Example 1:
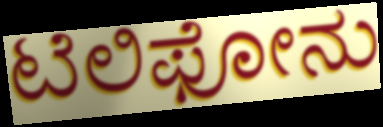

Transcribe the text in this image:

ಟೆಲಿಫೋನು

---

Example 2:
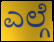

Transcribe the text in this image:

ಎಲ್ಗೆ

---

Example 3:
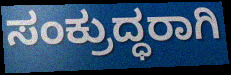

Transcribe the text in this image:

ಸಂಕ್ರುದ್ಧರಾಗಿ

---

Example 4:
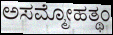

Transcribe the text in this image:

ಅಸಮ್ಮೋಹತ್ಥಂ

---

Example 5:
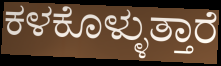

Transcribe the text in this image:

ಕಳಕೊಳ್ಳುತ್ತಾರೆ